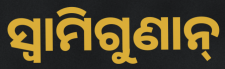
ସ୍ୱାମିଗୁଣାନ୍